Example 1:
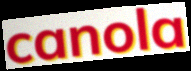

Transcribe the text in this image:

canola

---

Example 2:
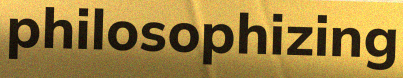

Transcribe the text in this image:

philosophizing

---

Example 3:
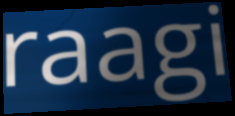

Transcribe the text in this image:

raagi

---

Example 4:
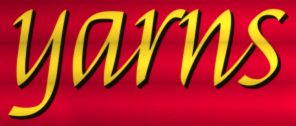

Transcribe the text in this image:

yarns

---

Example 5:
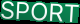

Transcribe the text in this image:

SPORT